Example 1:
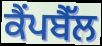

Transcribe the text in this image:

ਕੈਂਪਬੈੱਲ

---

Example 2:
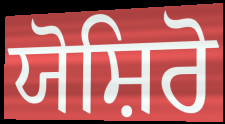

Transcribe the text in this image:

ਯੋਸ਼ਿਰੋ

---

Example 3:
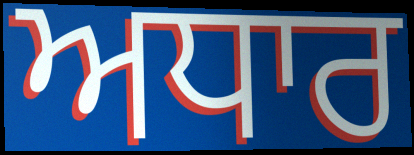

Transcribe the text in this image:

ਅਧਾਰ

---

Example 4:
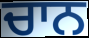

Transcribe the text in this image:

ਚਾਨ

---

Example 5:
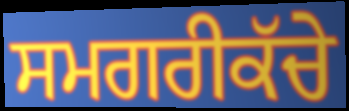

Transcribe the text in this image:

ਸਮਗਰੀਕੱਚੇ